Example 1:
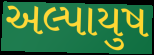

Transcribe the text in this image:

અલ્પાયુષ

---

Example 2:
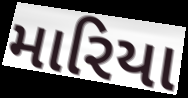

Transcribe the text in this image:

મારિયા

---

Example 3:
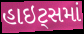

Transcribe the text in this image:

હાઇટ્સમાં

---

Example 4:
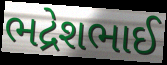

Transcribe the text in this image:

ભદ્રેશભાઈ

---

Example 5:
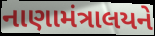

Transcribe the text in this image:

નાણામંત્રાલયને